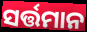
ସର୍ତ୍ତମାନ